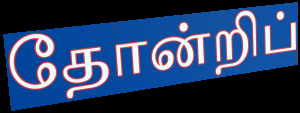
தோன்றிப்